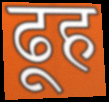
ढूह